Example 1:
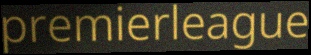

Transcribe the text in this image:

premierleague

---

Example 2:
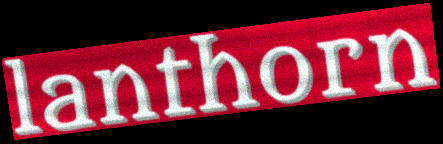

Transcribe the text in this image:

lanthorn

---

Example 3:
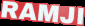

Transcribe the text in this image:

RAMJI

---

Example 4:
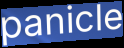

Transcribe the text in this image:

panicle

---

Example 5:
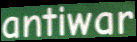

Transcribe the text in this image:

antiwar